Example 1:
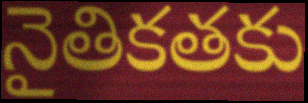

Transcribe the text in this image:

నైతికతకు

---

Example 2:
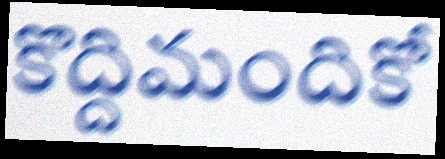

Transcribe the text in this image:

కొద్దిమందికో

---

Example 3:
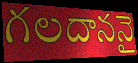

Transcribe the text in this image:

గలదాననై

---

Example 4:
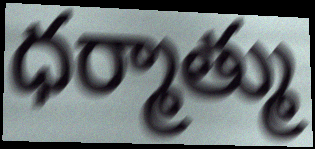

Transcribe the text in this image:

ధర్మాత్ము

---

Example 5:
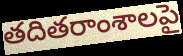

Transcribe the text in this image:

తదితరాంశాలపై